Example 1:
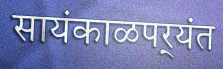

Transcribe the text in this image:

सायंकाळपर्यंत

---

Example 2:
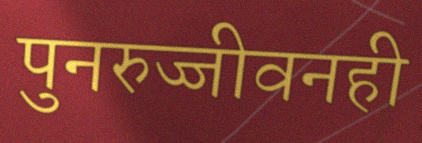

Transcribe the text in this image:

पुनरुज्जीवनही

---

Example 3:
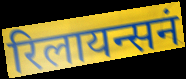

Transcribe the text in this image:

रिलायन्सनं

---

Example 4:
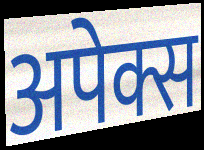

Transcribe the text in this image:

अपेक्स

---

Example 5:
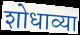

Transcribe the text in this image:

शोधाव्या